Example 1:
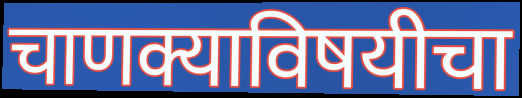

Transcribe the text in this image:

चाणक्याविषयीचा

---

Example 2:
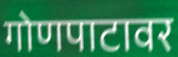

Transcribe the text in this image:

गोणपाटावर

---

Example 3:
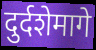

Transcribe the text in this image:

दुर्दशेमागे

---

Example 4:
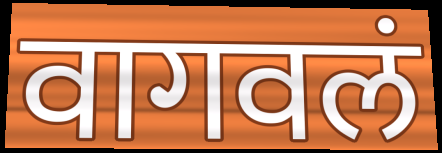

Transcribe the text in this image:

वागवलं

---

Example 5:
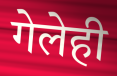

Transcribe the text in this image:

गेलेही